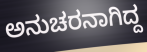
ಅನುಚರನಾಗಿದ್ದ